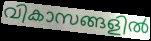
വികാസങ്ങളിൽ